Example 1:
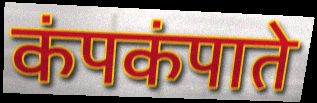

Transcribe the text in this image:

कंपकंपाते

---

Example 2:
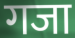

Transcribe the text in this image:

गजा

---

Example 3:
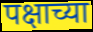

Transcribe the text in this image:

पक्षाच्या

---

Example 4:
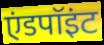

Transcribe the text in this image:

एंडपॉइंट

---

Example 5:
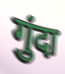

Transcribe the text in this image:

गुंदा